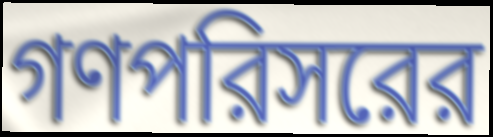
গণপরিসরের